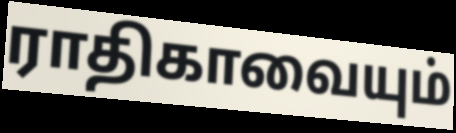
ராதிகாவையும்